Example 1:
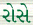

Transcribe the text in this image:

રોસે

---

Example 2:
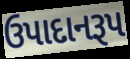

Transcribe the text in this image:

ઉપાદાનરૂપ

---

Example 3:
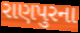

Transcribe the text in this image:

રાણપુરના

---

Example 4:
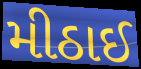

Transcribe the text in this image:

મીઠાઈ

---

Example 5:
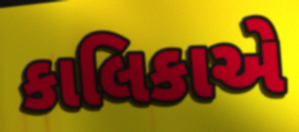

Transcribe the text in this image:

કાલિકાએ